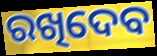
ରଖିଦେବ